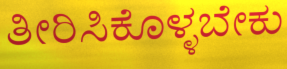
ತೀರಿಸಿಕೊಳ್ಳಬೇಕು